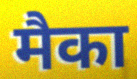
मैका